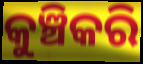
କୁଞ୍ଚିକରି